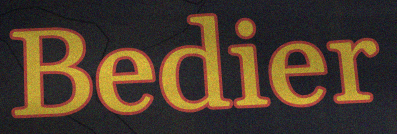
Bedier